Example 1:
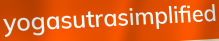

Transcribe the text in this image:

yogasutrasimplified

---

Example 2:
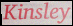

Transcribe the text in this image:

Kinsley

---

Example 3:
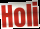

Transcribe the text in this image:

Holi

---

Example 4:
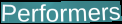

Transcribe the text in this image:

Performers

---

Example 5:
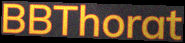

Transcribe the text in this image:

BBThorat